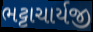
ભટ્ટાચાર્યજી